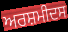
ਅਰਸ਼ਮੀਦਸ